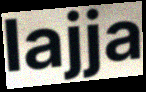
lajja